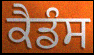
ਕੈਡੰਸ